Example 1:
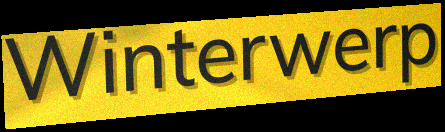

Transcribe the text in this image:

Winterwerp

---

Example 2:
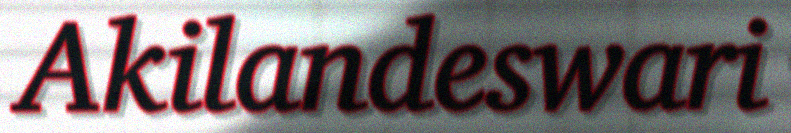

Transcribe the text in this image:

Akilandeswari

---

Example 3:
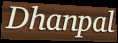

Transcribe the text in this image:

Dhanpal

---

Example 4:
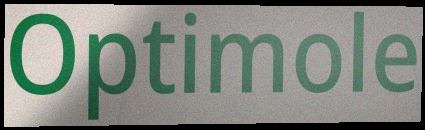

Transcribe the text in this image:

Optimole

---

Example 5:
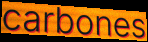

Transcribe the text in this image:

carbones